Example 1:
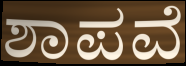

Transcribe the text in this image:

ಶಾಪವೆ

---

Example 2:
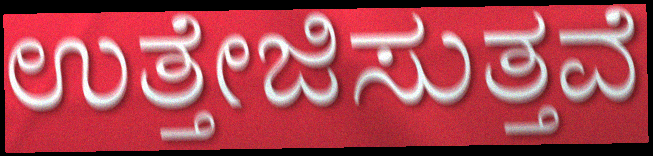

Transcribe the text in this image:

ಉತ್ತೇಜಿಸುತ್ತವೆ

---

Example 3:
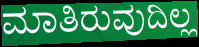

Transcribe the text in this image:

ಮಾತಿರುವುದಿಲ್ಲ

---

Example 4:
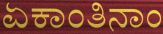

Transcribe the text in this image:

ಏಕಾಂತಿನಾಂ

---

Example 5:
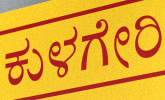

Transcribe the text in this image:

ಕುಳಗೇರಿ